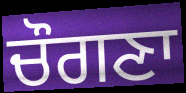
ਚੌਗਣਾ